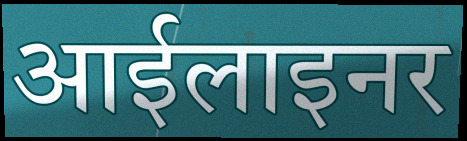
आईलाइनर